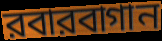
রবারবাগান